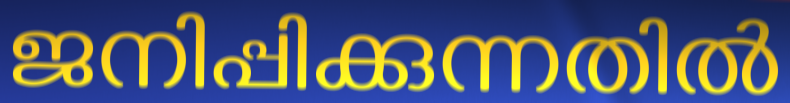
ജനിപ്പിക്കുന്നതിൽ